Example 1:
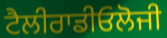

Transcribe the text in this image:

ਟੈਲੀਰਾਡੀਓਲੋਜੀ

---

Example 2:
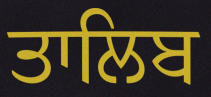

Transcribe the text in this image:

ਤਾਲਿਬ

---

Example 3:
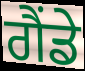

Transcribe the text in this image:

ਗੈਂਡੇ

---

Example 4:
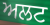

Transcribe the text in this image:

ਅਲਟ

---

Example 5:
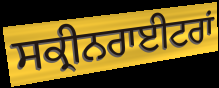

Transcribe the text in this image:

ਸਕ੍ਰੀਨਰਾਈਟਰਾਂ